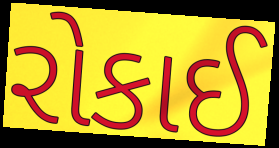
રોકાઈ